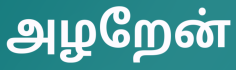
அழறேன்